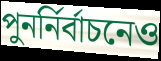
পুনর্নির্বাচনেও